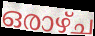
ഒരാഴ്ച